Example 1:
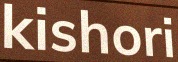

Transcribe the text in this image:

kishori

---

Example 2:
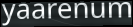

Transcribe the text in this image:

yaarenum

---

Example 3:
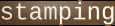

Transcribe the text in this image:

stamping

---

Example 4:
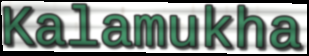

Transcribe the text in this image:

Kalamukha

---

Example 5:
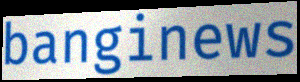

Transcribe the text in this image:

banginews